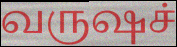
வருஷச்